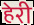
हेरी